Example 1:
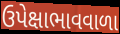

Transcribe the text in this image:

ઉપેક્ષાભાવવાળા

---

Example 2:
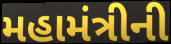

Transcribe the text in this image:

મહામંત્રીની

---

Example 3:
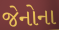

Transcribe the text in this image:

જેનોના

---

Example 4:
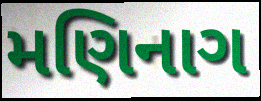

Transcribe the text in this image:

મણિનાગ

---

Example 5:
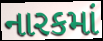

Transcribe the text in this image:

નારકમાં